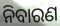
ନିବାରଣ